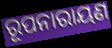
ରୂପନାରାୟଣ